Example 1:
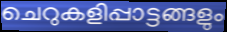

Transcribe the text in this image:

ചെറുകളിപ്പാട്ടങ്ങളും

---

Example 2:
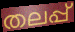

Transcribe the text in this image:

തലപ്പ്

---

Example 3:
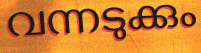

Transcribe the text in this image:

വന്നടുക്കും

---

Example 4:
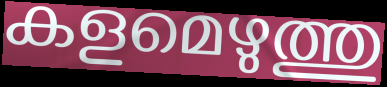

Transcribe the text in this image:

കളമെഴുത്തു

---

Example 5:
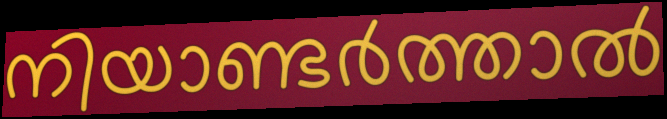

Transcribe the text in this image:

നിയാണ്ടർത്താൽ